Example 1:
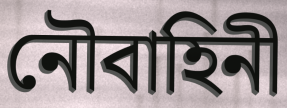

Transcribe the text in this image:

নৌবাহিনী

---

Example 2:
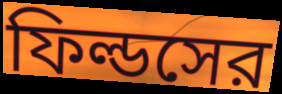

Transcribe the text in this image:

ফিল্ডসের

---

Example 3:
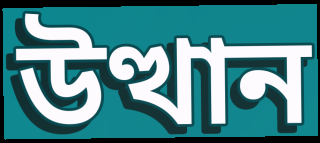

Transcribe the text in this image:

উত্থান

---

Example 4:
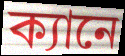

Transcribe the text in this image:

ক্যানে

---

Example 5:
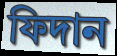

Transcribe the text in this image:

ফিদান